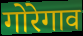
गोरेगाव